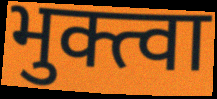
भुक्त्वा